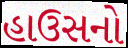
હાઉસનો